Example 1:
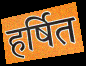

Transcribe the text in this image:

हर्षित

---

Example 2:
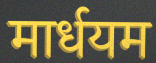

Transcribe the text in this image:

मार्धयम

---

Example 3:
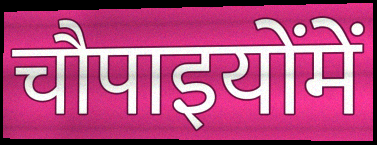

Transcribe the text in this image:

चौपाइयोंमें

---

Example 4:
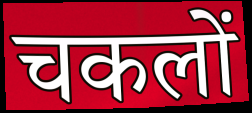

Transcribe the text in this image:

चकलों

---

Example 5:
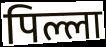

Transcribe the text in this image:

पिल्ला